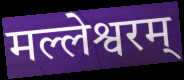
मल्लेश्वरम्